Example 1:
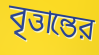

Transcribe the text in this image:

বৃত্তান্তের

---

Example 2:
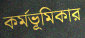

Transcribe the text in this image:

কর্মভূমিকার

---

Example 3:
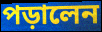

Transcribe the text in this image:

পড়ালেন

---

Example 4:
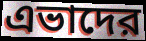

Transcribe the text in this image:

এভাদের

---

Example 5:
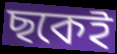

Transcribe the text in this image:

ছকেই